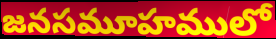
జనసమూహములో